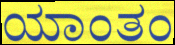
ಯಾಂತಂ